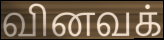
வினவக்